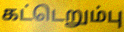
கட்டெறும்பு